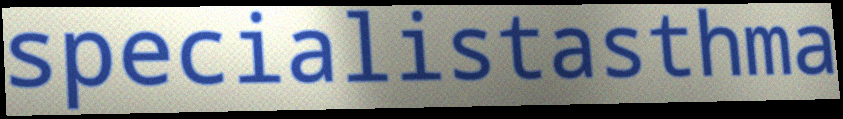
specialistasthma